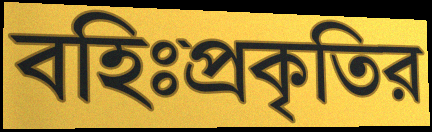
বহিঃপ্রকৃতির